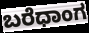
ಬರೆಧಾಂಗ